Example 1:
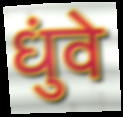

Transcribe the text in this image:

धुंवे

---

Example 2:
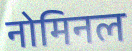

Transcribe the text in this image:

नोमिनल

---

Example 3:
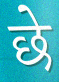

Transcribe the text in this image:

छे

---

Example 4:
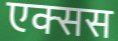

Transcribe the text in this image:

एक्सस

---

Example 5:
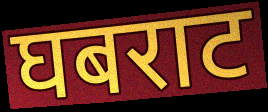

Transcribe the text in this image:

घबराट